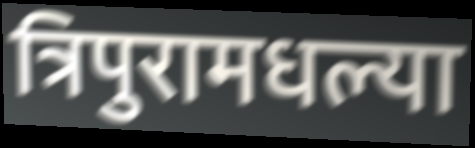
त्रिपुरामधल्या